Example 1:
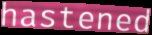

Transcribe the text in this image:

hastened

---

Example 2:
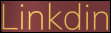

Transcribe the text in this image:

Linkdin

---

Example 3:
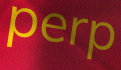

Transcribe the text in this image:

perp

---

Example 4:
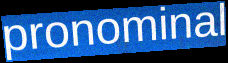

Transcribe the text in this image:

pronominal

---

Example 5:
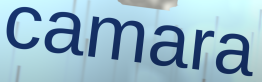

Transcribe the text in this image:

camara